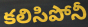
కలిసిపోనీ